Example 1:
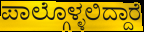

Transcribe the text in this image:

ಪಾಲ್ಗೊಳ್ಳಲಿದ್ದಾರೆ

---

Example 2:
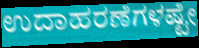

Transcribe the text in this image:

ಉದಾಹರಣೆಗಳಷ್ಟೇ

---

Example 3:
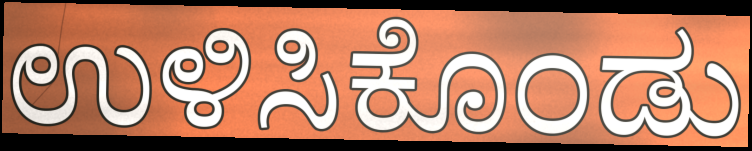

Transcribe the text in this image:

ಉಳಿಸಿಕೊಂಡು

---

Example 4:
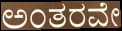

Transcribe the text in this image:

ಅಂತರವೇ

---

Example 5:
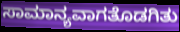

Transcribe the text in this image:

ಸಾಮಾನ್ಯವಾಗತೊಡಗಿತು